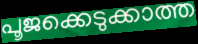
പൂജക്കെടുക്കാത്ത